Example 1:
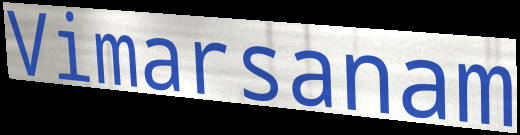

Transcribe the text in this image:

Vimarsanam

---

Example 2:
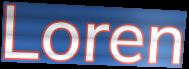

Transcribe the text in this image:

Loren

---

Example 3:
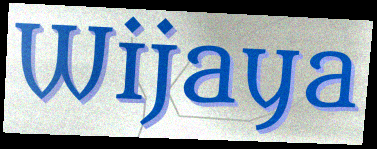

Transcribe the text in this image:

Wijaya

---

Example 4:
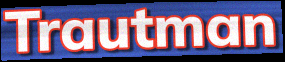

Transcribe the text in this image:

Trautman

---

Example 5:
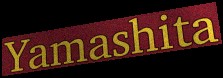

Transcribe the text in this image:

Yamashita